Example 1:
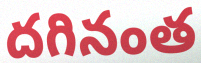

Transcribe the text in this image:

దగినంత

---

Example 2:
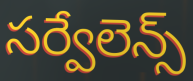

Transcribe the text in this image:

సర్వేలెన్స్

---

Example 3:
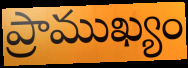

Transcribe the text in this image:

ప్రాముఖ్యం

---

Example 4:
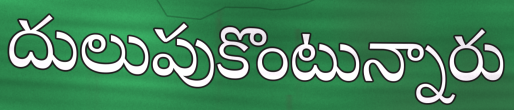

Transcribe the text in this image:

దులుపుకొంటున్నారు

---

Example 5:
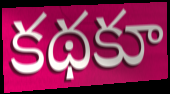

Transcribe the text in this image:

కథకూ